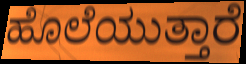
ಹೊಲೆಯುತ್ತಾರೆ